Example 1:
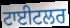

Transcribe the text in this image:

ਟਾਈਟਲਰ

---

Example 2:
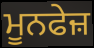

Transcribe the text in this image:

ਮੂਨਫੇਜ਼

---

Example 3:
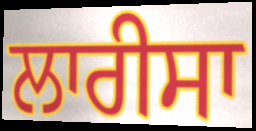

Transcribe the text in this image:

ਲਾਰੀਸਾ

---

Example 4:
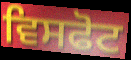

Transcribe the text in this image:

ਵਿਸਫੋਟ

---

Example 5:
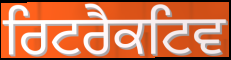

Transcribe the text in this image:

ਰਿਟਰੈਕਟਿਵ